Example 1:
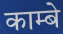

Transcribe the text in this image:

काम्बे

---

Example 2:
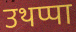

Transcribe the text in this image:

उथप्पा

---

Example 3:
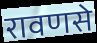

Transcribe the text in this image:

रावणसे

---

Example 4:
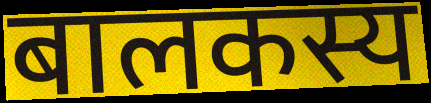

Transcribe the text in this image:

बालकस्य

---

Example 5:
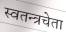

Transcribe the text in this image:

स्वतन्त्रचेता